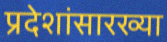
प्रदेशांसारख्या